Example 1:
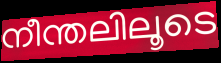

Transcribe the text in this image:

നീന്തലിലൂടെ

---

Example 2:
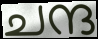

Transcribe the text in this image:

ചന്ദ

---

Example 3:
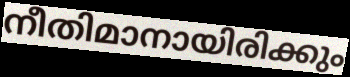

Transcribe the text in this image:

നീതിമാനായിരിക്കും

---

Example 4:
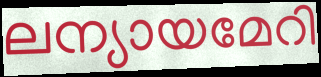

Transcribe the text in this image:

ലന്യായമേറി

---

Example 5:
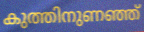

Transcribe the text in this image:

കുത്തിനുണഞ്ഞ്